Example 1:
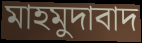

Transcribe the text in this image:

মাহমুদাবাদ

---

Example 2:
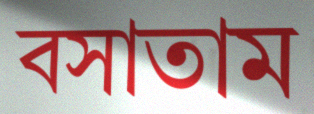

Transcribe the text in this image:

বসাতাম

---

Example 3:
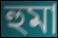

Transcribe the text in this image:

হুমা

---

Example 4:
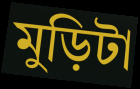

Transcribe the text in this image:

মুড়িটা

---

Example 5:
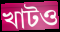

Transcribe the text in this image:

খাটও